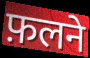
फ़लने